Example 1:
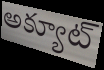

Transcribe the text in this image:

అక్యూట్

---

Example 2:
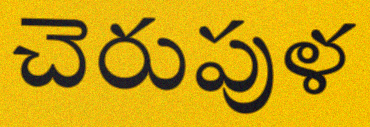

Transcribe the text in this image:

చెరుపుళ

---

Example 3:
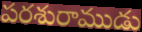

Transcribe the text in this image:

పరశురాముడు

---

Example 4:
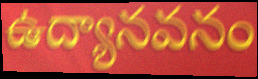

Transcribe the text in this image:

ఉద్యానవనం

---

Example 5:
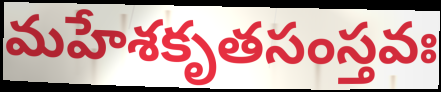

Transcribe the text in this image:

మహేశకృతసంస్తవః